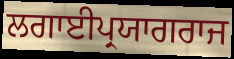
ਲਗਾਈਪ੍ਰਯਾਗਰਾਜ